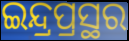
ଇନ୍ଦ୍ରପ୍ରସ୍ଥର